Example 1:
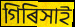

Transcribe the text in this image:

গিৰিসাই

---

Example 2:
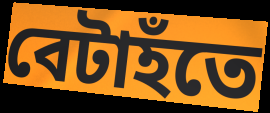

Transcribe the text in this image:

বেটাহঁতে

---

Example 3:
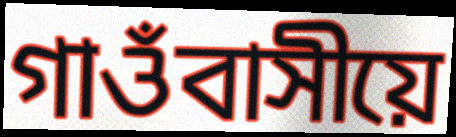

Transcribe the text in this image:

গাওঁবাসীয়ে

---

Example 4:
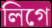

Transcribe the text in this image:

লিগে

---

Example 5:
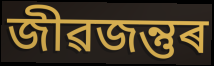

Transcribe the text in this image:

জীৱজন্তুৰ